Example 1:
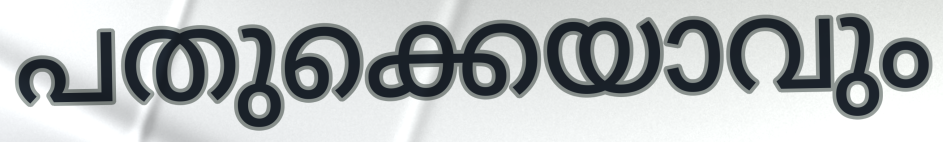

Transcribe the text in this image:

പതുക്കെയാവും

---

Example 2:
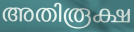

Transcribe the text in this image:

അതിരൂക്ഷ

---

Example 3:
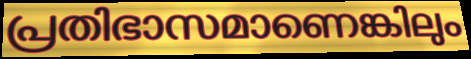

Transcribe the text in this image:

പ്രതിഭാസമാണെങ്കിലും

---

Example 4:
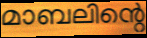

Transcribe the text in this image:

മാബലിന്റെ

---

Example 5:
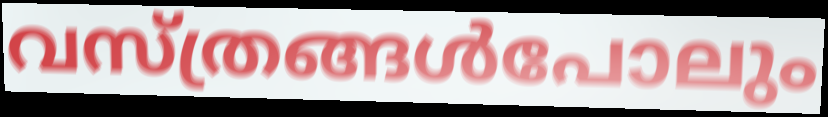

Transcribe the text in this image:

വസ്ത്രങ്ങൾപോലും